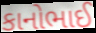
કાનોભાઈ